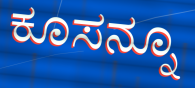
ಕೂಸನ್ನೂ